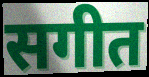
सगीत